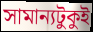
সামান্যটুকুই